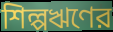
শিল্পঋণের